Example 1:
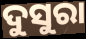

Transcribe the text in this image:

ଦୁସୁରା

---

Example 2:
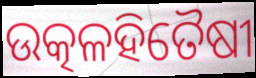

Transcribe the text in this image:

ଉତ୍କଳହିତୈଷୀ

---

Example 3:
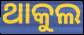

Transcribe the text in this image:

ଥାକୁଲ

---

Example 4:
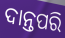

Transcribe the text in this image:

ଦାନ୍ତପରି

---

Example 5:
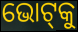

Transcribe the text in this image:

ଭୋଟ୍‍କୁ